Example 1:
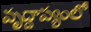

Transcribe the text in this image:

వృద్దాప్యంలో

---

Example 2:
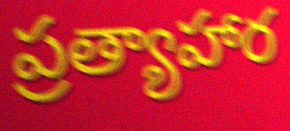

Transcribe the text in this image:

ప్రత్యాహార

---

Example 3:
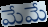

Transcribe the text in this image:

మేమే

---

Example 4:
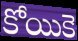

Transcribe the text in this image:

కోయికె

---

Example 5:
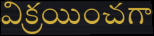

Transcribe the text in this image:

విక్రయించగా